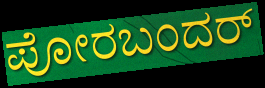
ಪೋರಬಂದರ್